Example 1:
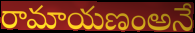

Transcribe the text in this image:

రామాయణంఅనే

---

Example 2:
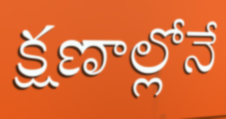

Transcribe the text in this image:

క్షణాల్లోనే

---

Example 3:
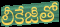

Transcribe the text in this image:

లీకేజీతో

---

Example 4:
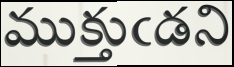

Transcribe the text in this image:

ముక్తుఁడని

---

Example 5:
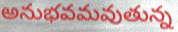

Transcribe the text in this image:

అనుభవమవుతున్న